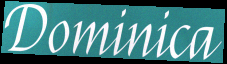
Dominica